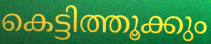
കെട്ടിത്തൂക്കും